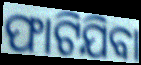
ଫାଟିଯିବା